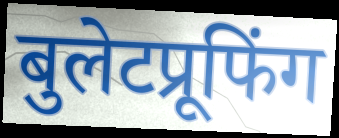
बुलेटप्रूफिंग